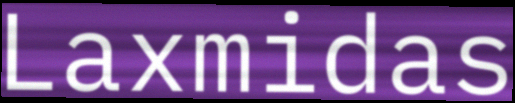
Laxmidas